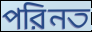
পরিনত